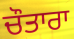
ਚੌਤਾਰਾ